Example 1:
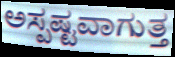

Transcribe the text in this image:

ಅಸ್ಪಷ್ಟವಾಗುತ್ತ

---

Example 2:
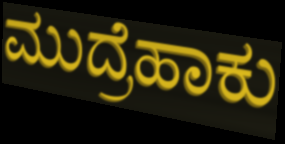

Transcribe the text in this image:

ಮುದ್ರೆಹಾಕು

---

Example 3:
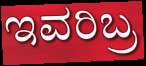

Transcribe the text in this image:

ಇವರಿಬ್ರ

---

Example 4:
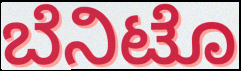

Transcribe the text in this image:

ಬೆನಿಟೊ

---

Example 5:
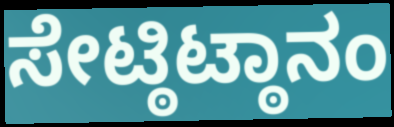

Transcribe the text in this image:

ಸೇಟ್ಠಿಟ್ಠಾನಂ